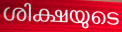
ശിക്ഷയുടെ